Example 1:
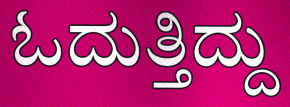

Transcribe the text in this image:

ಓದುತ್ತಿದ್ದು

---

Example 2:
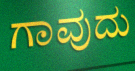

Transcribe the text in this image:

ಗಾವುದು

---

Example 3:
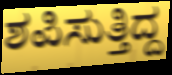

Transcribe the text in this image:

ಶಪಿಸುತ್ತಿದ್ದ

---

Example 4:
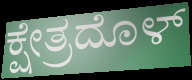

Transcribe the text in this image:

ಕ್ಷೇತ್ರದೊಳ್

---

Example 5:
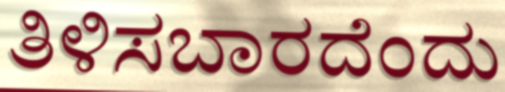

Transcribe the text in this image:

ತಿಳಿಸಬಾರದೆಂದು